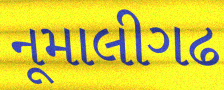
નૂમાલીગઢ